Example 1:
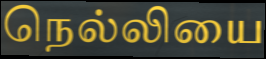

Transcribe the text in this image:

நெல்லியை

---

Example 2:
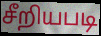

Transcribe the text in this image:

சீறியபடி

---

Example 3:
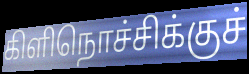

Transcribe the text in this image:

கிளிநொச்சிக்குச்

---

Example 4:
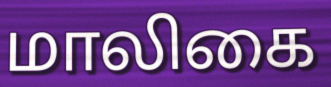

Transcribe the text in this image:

மாலிகை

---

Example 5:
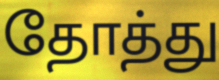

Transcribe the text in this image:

தோத்து